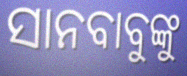
ସାନବାବୁଙ୍କୁ